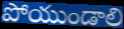
పోయుండాలి